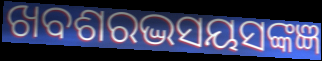
ଖବଶରଦ୍ଭସୟସଙ୍କଜ୍ଞ